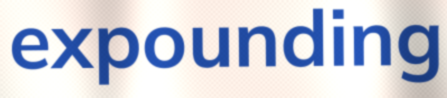
expounding